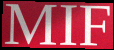
MIF